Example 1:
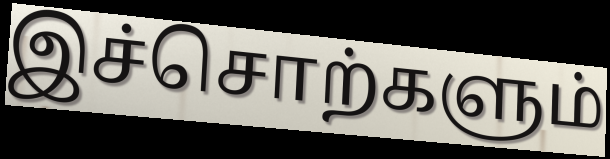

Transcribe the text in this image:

இச்சொற்களும்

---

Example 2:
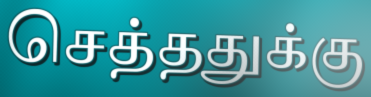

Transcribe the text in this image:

செத்ததுக்கு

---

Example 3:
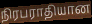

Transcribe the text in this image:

நிரபராதியான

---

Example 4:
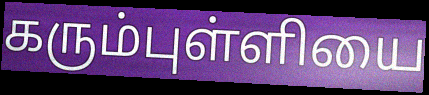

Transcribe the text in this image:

கரும்புள்ளியை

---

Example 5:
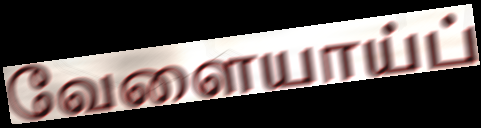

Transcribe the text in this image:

வேளையாய்ப்